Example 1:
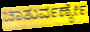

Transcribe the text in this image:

ಚಾತುರ್ವರ್ಣ್ಯೇ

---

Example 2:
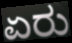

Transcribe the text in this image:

ಏರು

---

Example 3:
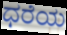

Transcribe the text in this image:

ಧರೆಯ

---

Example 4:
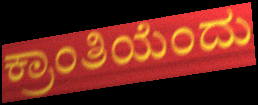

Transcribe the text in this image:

ಕ್ರಾಂತಿಯೆಂದು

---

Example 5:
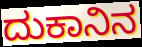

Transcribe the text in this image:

ದುಕಾನಿನ